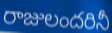
రాజులందరినీ